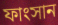
ফাংসান